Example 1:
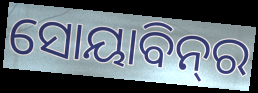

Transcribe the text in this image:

ସୋୟାବିନ୍‌ର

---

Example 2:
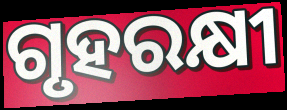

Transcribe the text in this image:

ଗୃହରକ୍ଷୀ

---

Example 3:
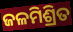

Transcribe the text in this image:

ଜଳମିଶ୍ରିତ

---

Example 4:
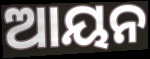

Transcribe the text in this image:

ଆୟନ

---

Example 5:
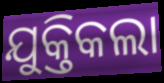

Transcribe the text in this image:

ଯୁକ୍ତିକଲା